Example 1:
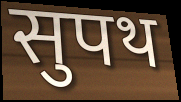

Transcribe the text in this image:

सुपथ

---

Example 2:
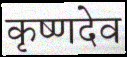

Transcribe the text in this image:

कृष्णदेव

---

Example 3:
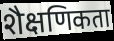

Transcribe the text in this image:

शैक्षणिकता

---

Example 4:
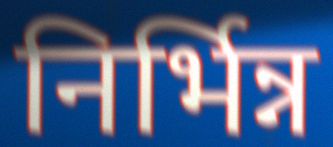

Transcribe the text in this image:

निर्भिन्न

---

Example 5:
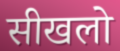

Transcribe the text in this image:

सीखलो